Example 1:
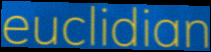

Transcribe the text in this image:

euclidian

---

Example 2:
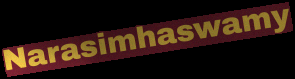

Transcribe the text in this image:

Narasimhaswamy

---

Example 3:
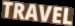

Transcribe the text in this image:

TRAVEL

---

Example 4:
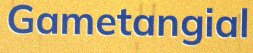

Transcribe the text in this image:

Gametangial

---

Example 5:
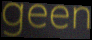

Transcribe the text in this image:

geen